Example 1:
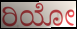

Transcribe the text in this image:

ರಿಯೋ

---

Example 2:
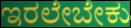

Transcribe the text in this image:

ಇರಲೇಬೇಕು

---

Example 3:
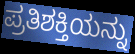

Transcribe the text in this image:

ಪ್ರತಿಶಕ್ತಿಯನ್ನು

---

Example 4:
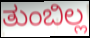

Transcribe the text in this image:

ತುಂಬಿಲ್ಲ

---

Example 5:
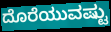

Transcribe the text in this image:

ದೊರೆಯುವಷ್ಟು